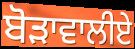
ਬੋੜਾਵਾਲੀਏ